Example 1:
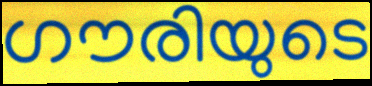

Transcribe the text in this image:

ഗൗരിയുടെ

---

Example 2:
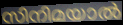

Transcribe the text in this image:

സിനിമയാൽ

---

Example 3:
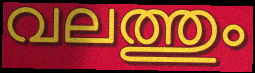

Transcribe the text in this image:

വലത്തും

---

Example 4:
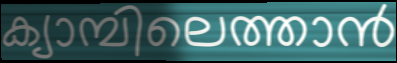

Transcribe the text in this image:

ക്യാമ്പിലെത്താൻ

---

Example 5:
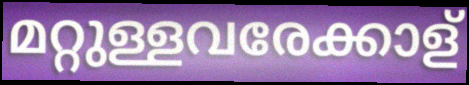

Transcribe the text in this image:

മറ്റുള്ളവരേക്കാള്